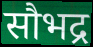
सौभद्र